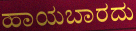
ಹಾಯಬಾರದು